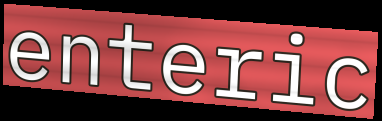
enteric